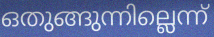
ഒതുങ്ങുന്നില്ലെന്ന്